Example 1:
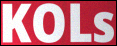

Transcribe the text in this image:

KOLs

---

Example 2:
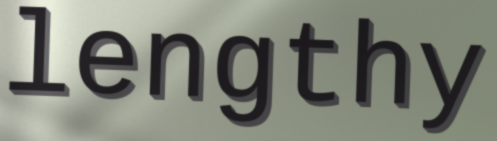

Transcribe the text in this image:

lengthy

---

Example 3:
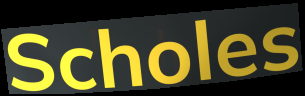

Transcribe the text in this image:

Scholes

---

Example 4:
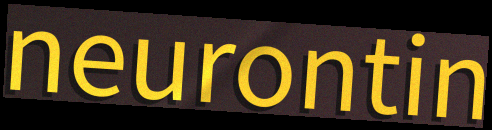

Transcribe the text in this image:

neurontin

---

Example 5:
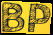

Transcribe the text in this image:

BP